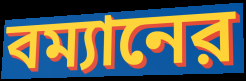
বম্যানের